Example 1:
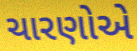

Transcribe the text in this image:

ચારણોએ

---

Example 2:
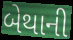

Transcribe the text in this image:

બેથાની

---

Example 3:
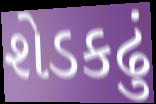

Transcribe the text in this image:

શેડકઢું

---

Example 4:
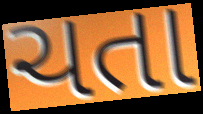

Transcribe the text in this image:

ચતા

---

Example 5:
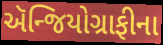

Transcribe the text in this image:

ઍન્જિયોગ્રાફીના